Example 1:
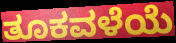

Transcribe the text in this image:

ತೂಕವಳೆಯೆ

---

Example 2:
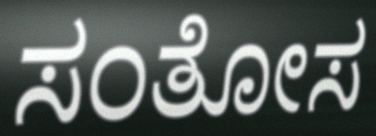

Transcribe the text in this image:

ಸಂತೋಸ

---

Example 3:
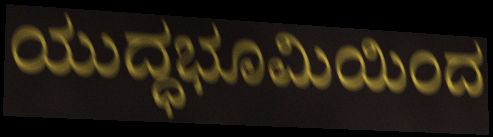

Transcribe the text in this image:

ಯುದ್ಧಭೂಮಿಯಿಂದ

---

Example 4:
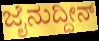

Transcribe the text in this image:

ಜೈನುದ್ದೀನ್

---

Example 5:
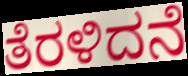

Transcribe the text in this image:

ತೆರಳಿದನೆ